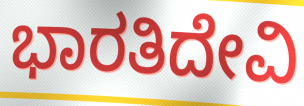
ಭಾರತಿದೇವಿ